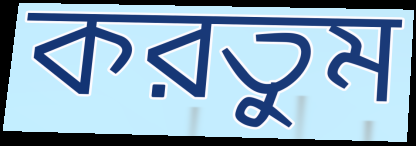
করতুম